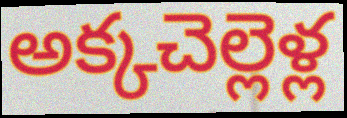
అక్కచెల్లెళ్ల